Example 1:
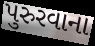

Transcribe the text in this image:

પુરુરવાના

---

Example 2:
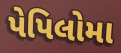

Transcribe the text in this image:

પેપિલોમા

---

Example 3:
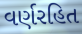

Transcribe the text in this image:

વર્ણરહિત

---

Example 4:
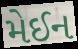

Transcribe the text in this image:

મેઈન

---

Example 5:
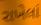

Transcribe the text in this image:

રાખેલાં